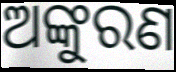
ଅଙ୍କୁରଣ